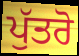
ਪੁੱਤਰੋ